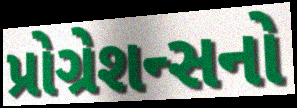
પ્રોગ્રેશન્સનો